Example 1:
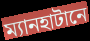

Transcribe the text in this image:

ম্যানহাটানে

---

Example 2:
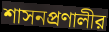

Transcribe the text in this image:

শাসনপ্রণালীর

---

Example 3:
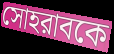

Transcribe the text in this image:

সোহরাবকে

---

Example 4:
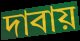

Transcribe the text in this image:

দাবায়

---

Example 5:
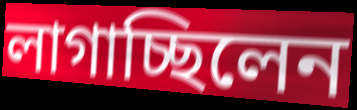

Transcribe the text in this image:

লাগাচ্ছিলেন